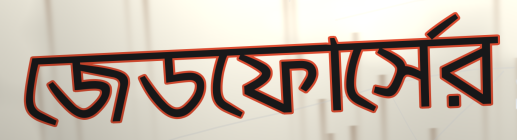
জেডফোর্সের